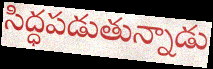
సిద్ధపడుతున్నాడు